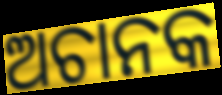
ଅଚାନକ